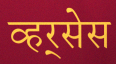
व्हर्सेस